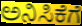
ಅನಿಸಿಕೆಗೆ